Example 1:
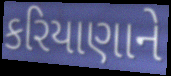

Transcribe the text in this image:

કરિયાણાને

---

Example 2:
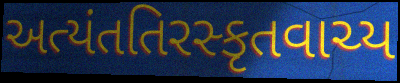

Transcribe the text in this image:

અત્યંતતિરસ્કૃતવાચ્ય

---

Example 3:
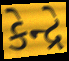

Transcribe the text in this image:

કેન્દ્રે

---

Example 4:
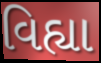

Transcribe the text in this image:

વિહ્યા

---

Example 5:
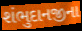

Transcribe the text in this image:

શંભુદાનજીના